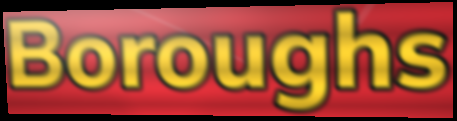
Boroughs